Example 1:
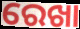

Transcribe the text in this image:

ରେଖା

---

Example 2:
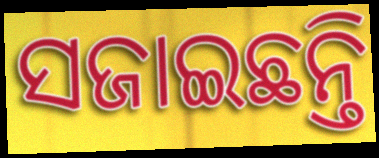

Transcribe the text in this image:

ସଜାଇଛନ୍ତି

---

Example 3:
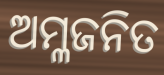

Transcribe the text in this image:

ଅମ୍ଳଜନିତ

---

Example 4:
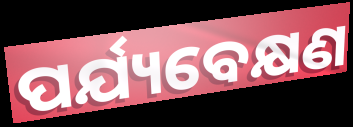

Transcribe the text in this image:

ପର୍ଯ୍ୟବେକ୍ଷଣ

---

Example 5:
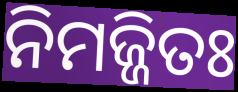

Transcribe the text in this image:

ନିମଜ୍ଜିତଃ